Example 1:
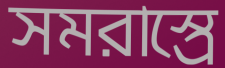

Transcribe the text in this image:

সমরাস্ত্রে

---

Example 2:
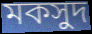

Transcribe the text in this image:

মকসুদ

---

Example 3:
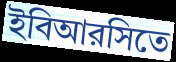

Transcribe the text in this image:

ইবিআরসিতে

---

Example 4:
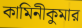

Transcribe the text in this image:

কামিনীকুমার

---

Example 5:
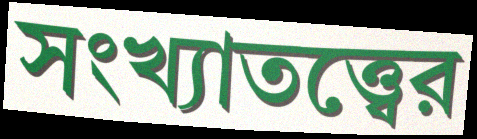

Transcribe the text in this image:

সংখ্যাতত্ত্বের